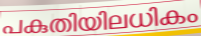
പകുതിയിലധികം